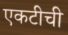
एकटीची